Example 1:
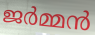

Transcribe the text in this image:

ജർമ്മൻ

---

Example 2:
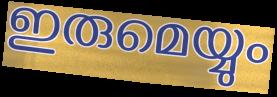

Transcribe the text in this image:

ഇരുമെയ്യും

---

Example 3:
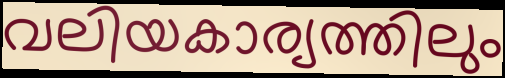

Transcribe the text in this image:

വലിയകാര്യത്തിലും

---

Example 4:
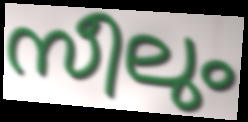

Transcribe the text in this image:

സീലും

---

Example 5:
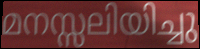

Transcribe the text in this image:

മനസ്സലിയിച്ചു